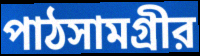
পাঠসামগ্রীর